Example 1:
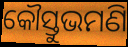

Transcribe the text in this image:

କୌସ୍ତୁଭମଣି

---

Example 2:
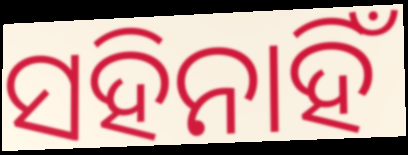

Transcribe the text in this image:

ସହିନାହିଁ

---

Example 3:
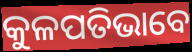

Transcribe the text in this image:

କୁଳପତିଭାବେ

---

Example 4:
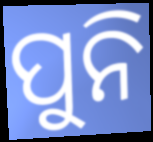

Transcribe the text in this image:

ପୁନି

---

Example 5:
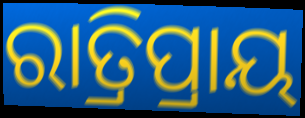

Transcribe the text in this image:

ରାତ୍ରିପ୍ରାୟ